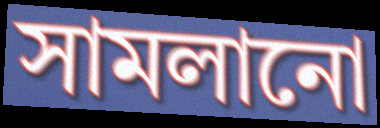
সামলানো